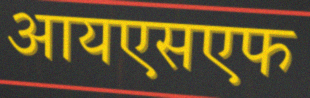
आयएसएफ